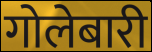
गोलेबारी